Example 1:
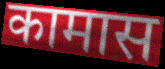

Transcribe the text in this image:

कामास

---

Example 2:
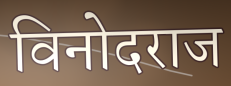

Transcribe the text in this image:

विनोदराज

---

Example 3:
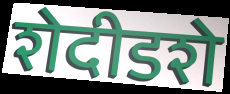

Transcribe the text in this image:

शेदीडशे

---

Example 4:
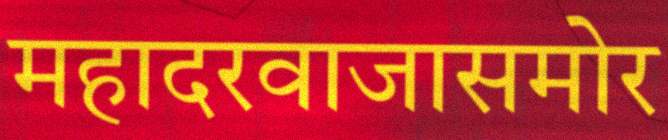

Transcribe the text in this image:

महादरवाजासमोर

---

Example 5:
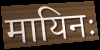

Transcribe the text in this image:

मायिनः